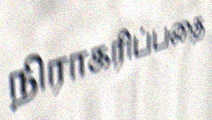
நிராகரிப்பதை